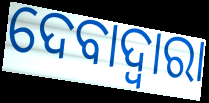
ଦେବାଦ୍ବାରା